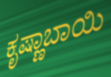
ಕೃಷ್ಣಾಬಾಯಿ